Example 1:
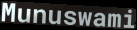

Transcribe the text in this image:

Munuswami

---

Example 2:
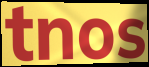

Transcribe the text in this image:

tnos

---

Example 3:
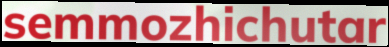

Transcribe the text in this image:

semmozhichutar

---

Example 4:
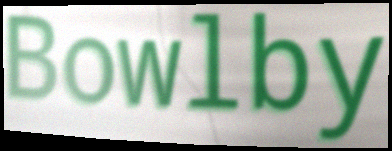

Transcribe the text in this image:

Bowlby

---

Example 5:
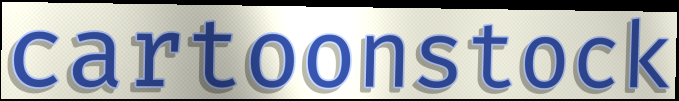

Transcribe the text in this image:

cartoonstock